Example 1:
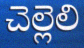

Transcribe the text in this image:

చెల్లెలి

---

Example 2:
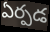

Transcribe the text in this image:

ఏర్పడ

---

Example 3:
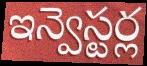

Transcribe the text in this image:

ఇన్వెస్టర్ల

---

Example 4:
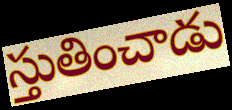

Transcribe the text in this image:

స్తుతించాడు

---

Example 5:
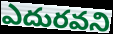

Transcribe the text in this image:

ఎదురవని